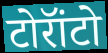
टोरॉंटो